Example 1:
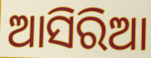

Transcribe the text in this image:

ଆସିରିଆ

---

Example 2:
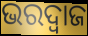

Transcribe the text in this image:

ଭରଦ୍ଵାଜ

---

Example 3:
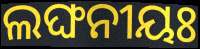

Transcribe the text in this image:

ଲଙ୍ଘନୀୟଃ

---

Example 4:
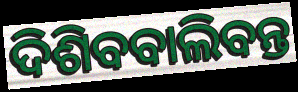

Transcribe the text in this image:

ଦିଶିବବାଲିବନ୍ତ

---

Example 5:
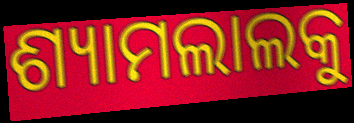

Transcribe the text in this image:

ଶ୍ୟାମଲାଲକୁ